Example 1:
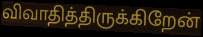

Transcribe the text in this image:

விவாதித்திருக்கிறேன்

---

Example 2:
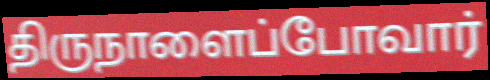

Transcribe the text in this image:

திருநாளைப்போவார்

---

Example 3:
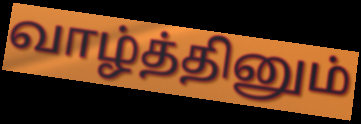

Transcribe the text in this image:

வாழ்த்தினும்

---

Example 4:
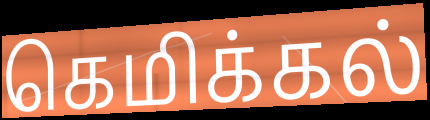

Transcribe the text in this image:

கெமிக்கல்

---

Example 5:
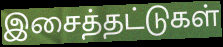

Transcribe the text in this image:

இசைத்தட்டுகள்